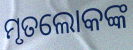
ମୃତଲୋକଙ୍କ